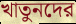
খাতুনদের